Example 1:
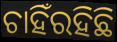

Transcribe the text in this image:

ଚାହିଁରହିଛି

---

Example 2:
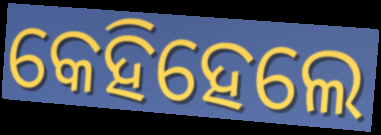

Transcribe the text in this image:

କେହିହେଲେ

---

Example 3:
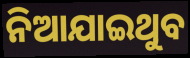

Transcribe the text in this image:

ନିଆଯାଇଥୁବ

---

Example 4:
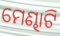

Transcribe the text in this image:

ମେଣ୍ଢାଟି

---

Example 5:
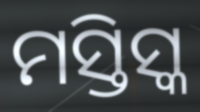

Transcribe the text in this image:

ମସ୍ତିସ୍କ